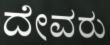
ದೇವರು